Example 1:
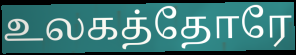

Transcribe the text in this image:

உலகத்தோரே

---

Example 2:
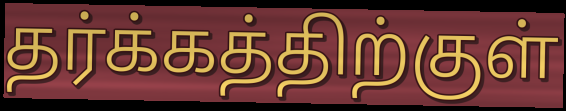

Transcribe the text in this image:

தர்க்கத்திற்குள்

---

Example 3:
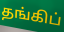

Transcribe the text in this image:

தங்கிப்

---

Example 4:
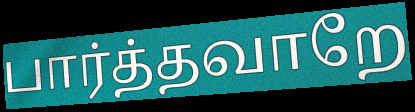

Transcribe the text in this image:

பார்த்தவாறே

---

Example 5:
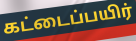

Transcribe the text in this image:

கட்டைப்பயிர்